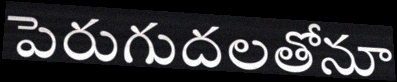
పెరుగుదలతోనూ